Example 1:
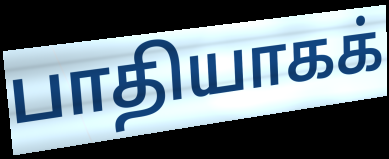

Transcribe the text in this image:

பாதியாகக்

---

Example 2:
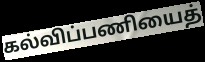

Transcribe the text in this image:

கல்விப்பணியைத்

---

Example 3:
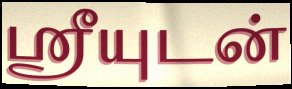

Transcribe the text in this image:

ஸ்ரீயுடன்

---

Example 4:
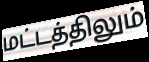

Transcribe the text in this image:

மட்டத்திலும்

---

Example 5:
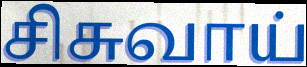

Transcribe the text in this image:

சிசுவாய்